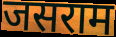
जसराम